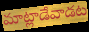
మాట్లాడేవాడట